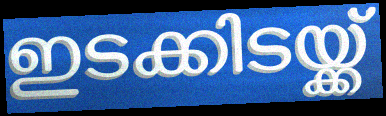
ഇടക്കിടയ്ക്ക്